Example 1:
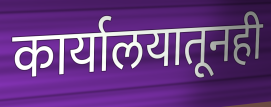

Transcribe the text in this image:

कार्यालयातूनही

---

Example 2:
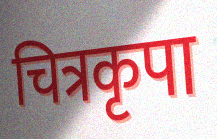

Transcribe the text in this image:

चित्रकृपा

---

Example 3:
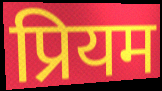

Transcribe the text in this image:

प्रियम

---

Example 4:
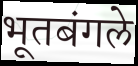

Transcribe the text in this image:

भूतबंगले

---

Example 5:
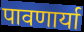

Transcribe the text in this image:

पावणार्या